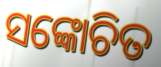
ସଙ୍କୋଚିତ